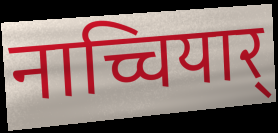
नाच्चियार्